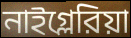
নাইগ্লেরিয়া